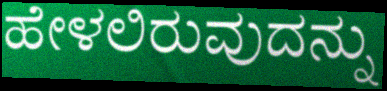
ಹೇಳಲಿರುವುದನ್ನು